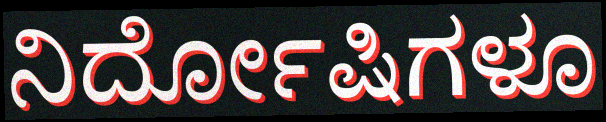
ನಿರ್ದೋಷಿಗಳೂ